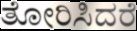
ತೋರಿಸಿದರೆ